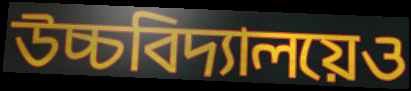
উচ্চবিদ্যালয়েও